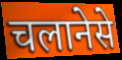
चलानेसे